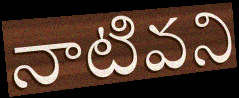
నాటివని